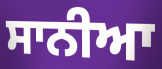
ਸਾਨੀਆ